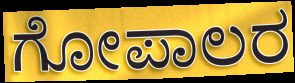
ಗೋಪಾಲರ